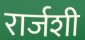
रार्जशी